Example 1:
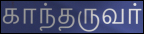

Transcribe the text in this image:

காந்தருவர்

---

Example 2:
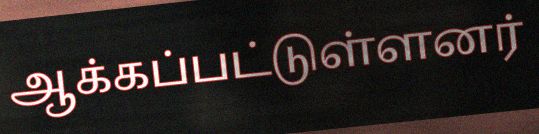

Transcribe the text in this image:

ஆக்கப்பட்டுள்ளனர்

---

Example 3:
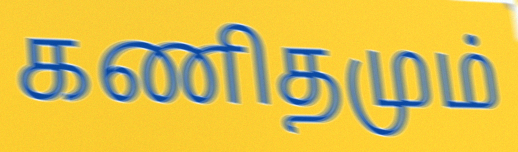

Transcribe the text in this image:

கணிதமும்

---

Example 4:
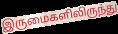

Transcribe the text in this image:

இருமைகளிலிருந்து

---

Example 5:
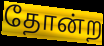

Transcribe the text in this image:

தோன்ற